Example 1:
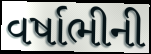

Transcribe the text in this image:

વર્ષાભીની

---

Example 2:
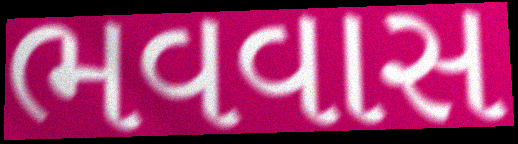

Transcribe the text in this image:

ભવવાસ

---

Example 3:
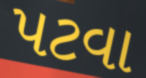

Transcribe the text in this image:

પટવા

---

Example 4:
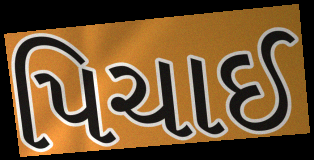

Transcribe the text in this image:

પિચાઈ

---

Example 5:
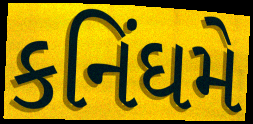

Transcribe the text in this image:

કનિંઘમે